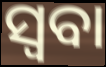
ସ୍ୱବା